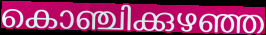
കൊഞ്ചിക്കുഴഞ്ഞ